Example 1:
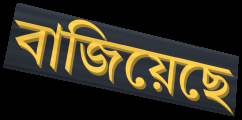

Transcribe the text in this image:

বাজিয়েছে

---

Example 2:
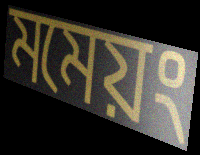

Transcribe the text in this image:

মমেয়ং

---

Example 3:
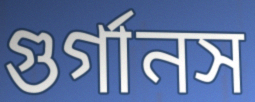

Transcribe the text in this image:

গুর্গানস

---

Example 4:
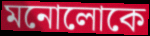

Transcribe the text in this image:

মনোলোকে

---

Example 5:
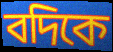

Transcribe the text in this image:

বদিকে